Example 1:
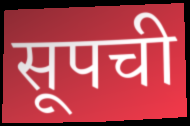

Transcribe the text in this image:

सूपची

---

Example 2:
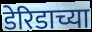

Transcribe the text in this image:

डेरिडाच्या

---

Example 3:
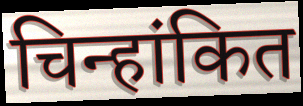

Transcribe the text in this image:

चिन्हांकित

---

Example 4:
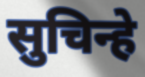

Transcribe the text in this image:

सुचिन्हे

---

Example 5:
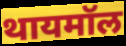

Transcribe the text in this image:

थायमॉल